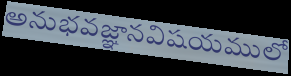
అనుభవజ్ఞానవిషయములో